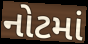
નોટમાં